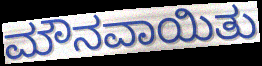
ಮೌನವಾಯಿತು